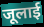
जूलाई